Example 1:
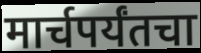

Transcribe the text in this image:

मार्चपर्यंतचा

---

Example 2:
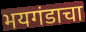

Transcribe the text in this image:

भयगंडाचा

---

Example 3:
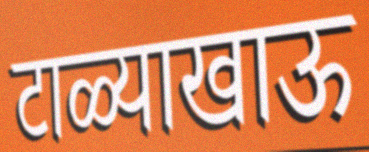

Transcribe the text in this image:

टाळ्याखाऊ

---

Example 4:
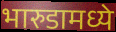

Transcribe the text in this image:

भारुडामध्ये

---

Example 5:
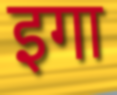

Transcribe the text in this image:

इगा